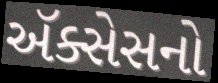
ઍક્સેસનો